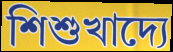
শিশুখাদ্যে